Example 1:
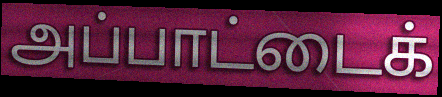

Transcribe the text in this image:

அப்பாட்டைக்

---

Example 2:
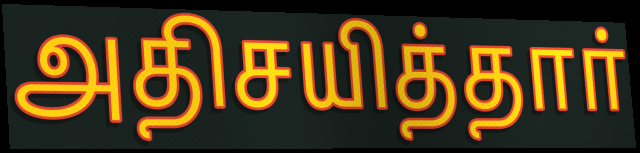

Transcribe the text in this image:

அதிசயித்தார்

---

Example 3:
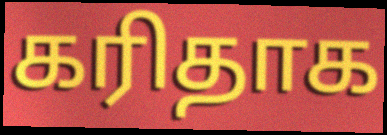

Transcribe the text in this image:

கரிதாக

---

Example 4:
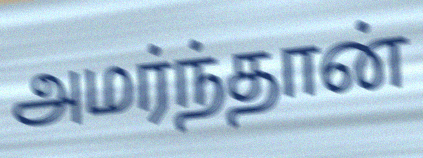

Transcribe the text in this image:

அமர்ந்தான்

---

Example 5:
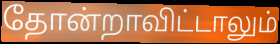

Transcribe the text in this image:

தோன்றாவிட்டாலும்